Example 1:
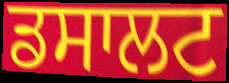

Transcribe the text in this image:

ਡਸਾਲਟ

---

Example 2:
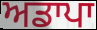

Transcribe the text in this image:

ਅਡਾਪਾ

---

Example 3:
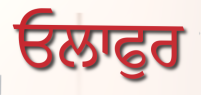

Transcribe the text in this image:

ਓਲਾਫੁਰ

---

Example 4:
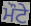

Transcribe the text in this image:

ਮੌਟੇ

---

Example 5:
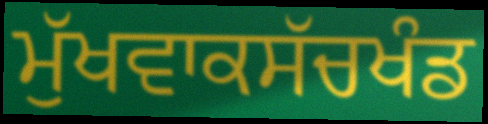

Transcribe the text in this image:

ਮੁੱਖਵਾਕਸੱਚਖੰਡ